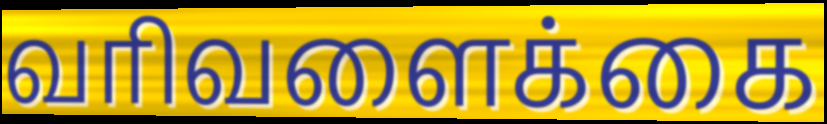
வரிவளைக்கை